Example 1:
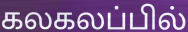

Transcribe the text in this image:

கலகலப்பில்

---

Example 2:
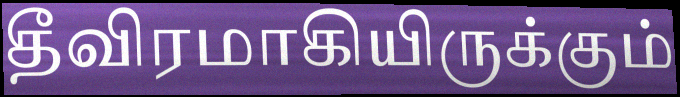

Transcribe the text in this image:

தீவிரமாகியிருக்கும்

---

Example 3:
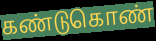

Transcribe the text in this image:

கண்டுகொண்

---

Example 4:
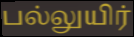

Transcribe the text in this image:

பல்லுயிர்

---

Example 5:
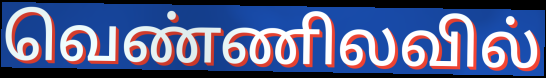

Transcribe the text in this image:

வெண்ணிலவில்